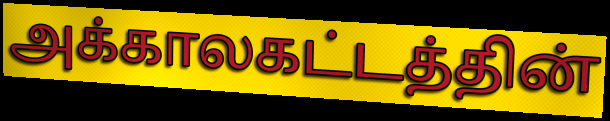
அக்காலகட்டத்தின்